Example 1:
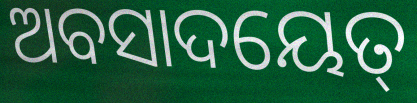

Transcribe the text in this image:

ଅବସାଦୟେତ୍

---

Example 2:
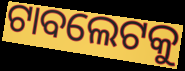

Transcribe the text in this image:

ଟାବଲେଟକୁ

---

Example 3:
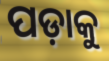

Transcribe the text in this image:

ପଡ଼ାକୁ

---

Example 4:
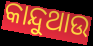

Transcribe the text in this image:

କାନ୍ଦୁଥାଉ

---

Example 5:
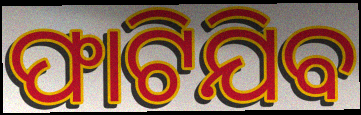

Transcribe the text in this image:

ଫାଟିଯିବ